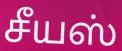
சீயஸ்